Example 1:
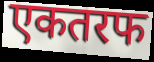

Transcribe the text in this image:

एकतरफ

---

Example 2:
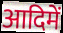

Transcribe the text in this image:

आदिमें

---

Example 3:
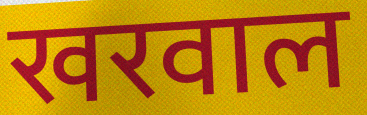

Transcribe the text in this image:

खरवाल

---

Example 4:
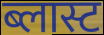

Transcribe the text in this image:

ब्लास्ट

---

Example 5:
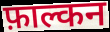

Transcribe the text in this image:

फ़ाल्कन